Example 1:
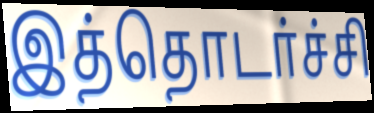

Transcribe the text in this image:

இத்தொடர்ச்சி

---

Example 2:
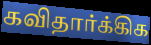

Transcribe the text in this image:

கவிதார்க்கிக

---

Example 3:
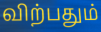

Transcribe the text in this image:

விற்பதும்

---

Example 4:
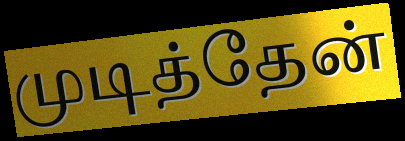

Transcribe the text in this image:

முடித்தேன்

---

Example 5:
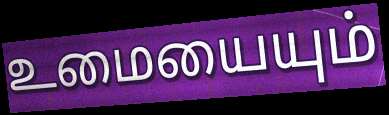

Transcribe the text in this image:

உமையையும்